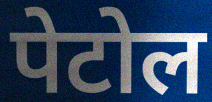
पेटोल